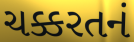
ચક્કરતનં